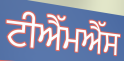
ਟੀਐੱਮਐੱਸ